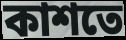
কাশতে